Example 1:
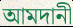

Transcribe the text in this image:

আমদানী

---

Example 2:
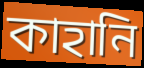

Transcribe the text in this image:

কাহানি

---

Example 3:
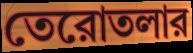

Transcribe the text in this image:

তেরোতলার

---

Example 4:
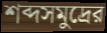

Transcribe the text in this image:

শব্দসমুদ্রের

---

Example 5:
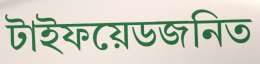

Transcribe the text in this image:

টাইফয়েডজনিত